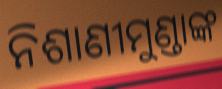
ନିଶାଣୀମୁଣ୍ଡାଙ୍କ